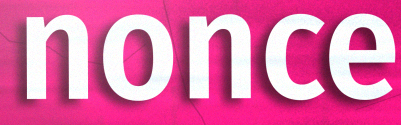
nonce